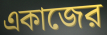
একাজের